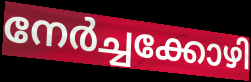
നേർച്ചക്കോഴി